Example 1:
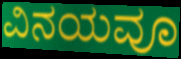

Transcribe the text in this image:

ವಿನಯವೂ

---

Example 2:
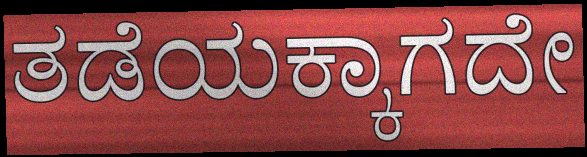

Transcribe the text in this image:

ತಡೆಯಕ್ಕಾಗದೇ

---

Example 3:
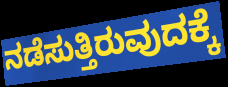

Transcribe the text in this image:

ನಡೆಸುತ್ತಿರುವುದಕ್ಕೆ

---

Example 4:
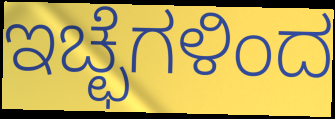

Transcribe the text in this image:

ಇಚ್ಛೆಗಳಿಂದ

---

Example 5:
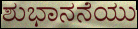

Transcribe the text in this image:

ಶುಭಾನನೆಯು